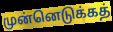
முன்னெடுக்கத்